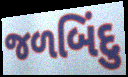
જળબિંદુ